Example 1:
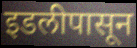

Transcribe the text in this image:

इडलीपासून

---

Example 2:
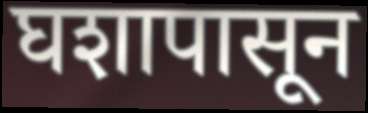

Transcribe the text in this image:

घशापासून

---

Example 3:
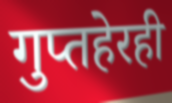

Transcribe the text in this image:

गुप्तहेरही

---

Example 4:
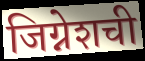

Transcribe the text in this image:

जिग्नेशची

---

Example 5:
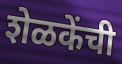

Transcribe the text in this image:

शेळकेंची